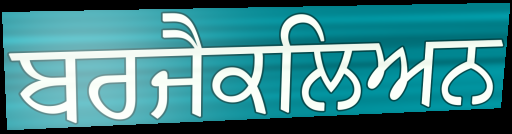
ਬਰਜੈਕਲਿਅਨ